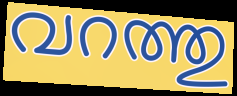
വറത്തു